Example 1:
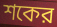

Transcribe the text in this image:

শকের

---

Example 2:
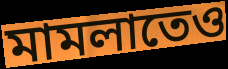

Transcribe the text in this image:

মামলাতেও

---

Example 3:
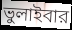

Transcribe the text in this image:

ভুলাইবার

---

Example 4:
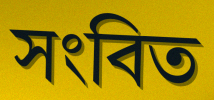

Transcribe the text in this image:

সংবিত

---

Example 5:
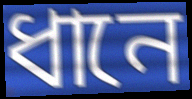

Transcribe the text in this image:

ধানে